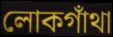
লোকগাঁথা